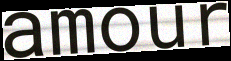
amour